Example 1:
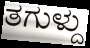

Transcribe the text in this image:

ತಗುಳ್ದು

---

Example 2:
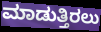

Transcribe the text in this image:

ಮಾಡುತ್ತಿರಲು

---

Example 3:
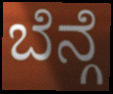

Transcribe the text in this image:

ಬೆನ್ಗೆ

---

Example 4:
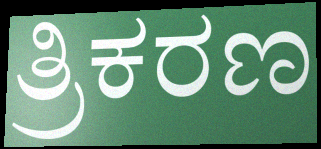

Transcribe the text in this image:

ತ್ರಿಕರಣ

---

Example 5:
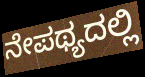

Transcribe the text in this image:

ನೇಪಥ್ಯದಲ್ಲಿ